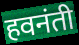
हवनंती